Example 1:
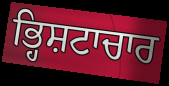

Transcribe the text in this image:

ਭ੍ਹਿਸ਼ਟਾਚਾਰ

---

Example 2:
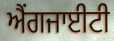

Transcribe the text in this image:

ਐਂਗਜਾਈਟੀ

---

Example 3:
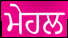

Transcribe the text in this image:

ਮੇਹਲ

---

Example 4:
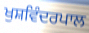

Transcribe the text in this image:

ਖੁਸ਼ਵਿੰਦਰਪਾਲ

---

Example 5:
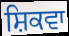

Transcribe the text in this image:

ਸ਼ਿਕਵਾ